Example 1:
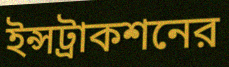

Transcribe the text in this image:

ইন্সট্রাকশনের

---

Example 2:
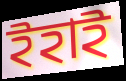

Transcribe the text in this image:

ইহাই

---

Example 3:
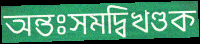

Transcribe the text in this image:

অন্তঃসমদ্বিখণ্ডক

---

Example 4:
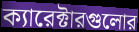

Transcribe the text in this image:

ক্যারেক্টারগুলোর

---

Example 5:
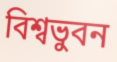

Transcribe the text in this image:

বিশ্বভুবন